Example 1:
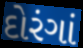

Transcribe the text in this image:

દોરંગાં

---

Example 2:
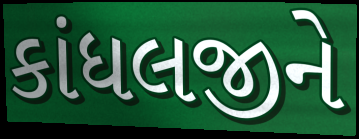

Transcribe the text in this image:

કાંધલજીને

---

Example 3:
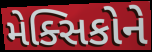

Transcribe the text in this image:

મેક્સિકોને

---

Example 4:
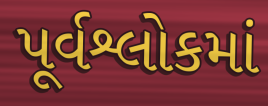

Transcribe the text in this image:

પૂર્વશ્લોકમાં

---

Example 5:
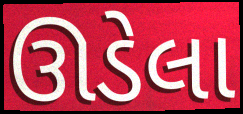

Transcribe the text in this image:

ઊડેલા